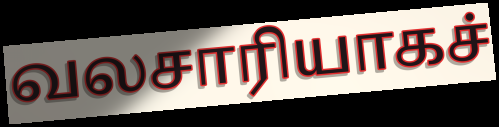
வலசாரியாகச்